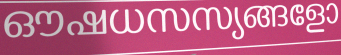
ഔഷധസസ്യങ്ങളോ